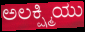
ಅಲಕ್ಷ್ಮಿಯು